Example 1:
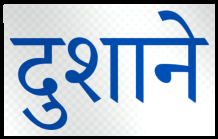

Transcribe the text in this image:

दुशाने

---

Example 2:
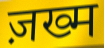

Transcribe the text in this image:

ज़ख्म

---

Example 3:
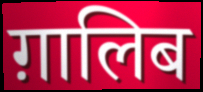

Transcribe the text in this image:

ग़ालिब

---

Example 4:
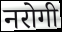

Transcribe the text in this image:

नरोगी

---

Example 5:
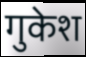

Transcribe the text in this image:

गुकेश